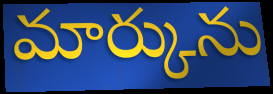
మార్కును